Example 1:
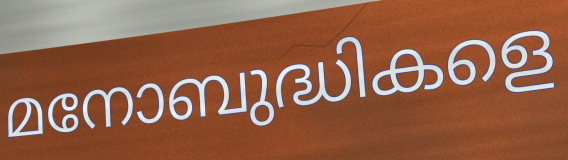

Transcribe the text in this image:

മനോബുദ്ധികളെ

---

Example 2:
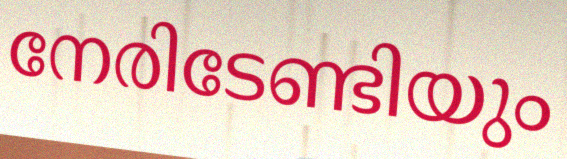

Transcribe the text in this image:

നേരിടേണ്ടിയും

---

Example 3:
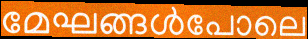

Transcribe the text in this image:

മേഘങ്ങൾപോലെ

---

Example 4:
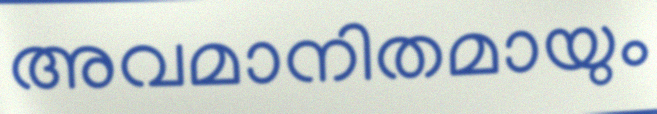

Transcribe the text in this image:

അവമാനിതമായും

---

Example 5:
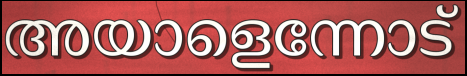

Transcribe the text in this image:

അയാളെന്നോട്